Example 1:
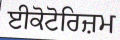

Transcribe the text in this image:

ਈਕੋਟੋਰਿਜ਼ਮ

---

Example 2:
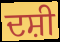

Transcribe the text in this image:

ਦਸ਼ੀ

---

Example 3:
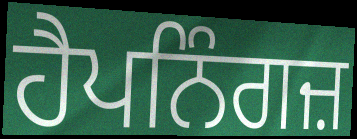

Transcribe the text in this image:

ਹੈਪਨਿੰਗਜ਼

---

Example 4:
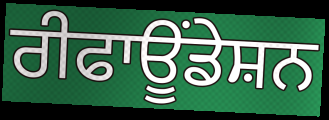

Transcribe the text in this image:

ਰੀਫਾਊਂਡੇਸ਼ਨ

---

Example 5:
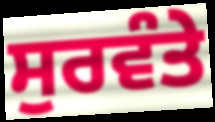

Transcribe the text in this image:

ਸੁਰਵੰਤੇ